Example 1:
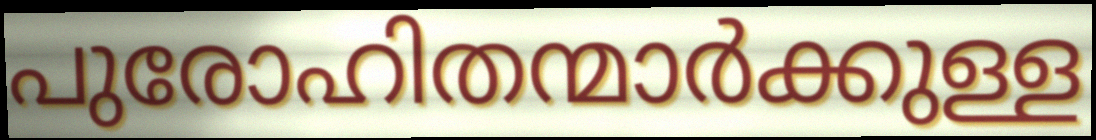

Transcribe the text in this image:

പുരോഹിതന്മാർക്കുള്ള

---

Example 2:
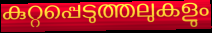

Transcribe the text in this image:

കുറ്റപ്പെടുത്തലുകളും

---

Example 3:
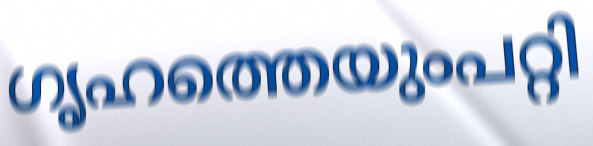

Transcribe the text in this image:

ഗൃഹത്തെയുംപറ്റി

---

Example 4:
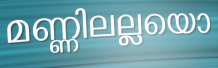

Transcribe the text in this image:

മണ്ണിലല്ലയൊ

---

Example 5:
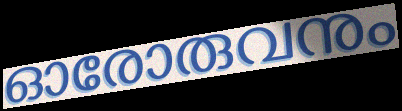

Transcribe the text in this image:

ഓരോരുവനും